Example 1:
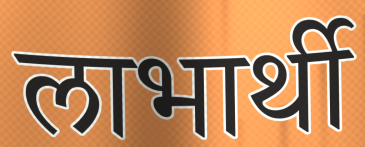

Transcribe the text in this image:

लाभार्थी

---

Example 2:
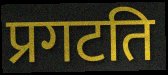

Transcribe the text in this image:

प्रगटति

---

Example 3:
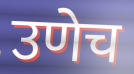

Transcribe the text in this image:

उणेच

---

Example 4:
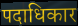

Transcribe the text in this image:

पदाधिकार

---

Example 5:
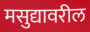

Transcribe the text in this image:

मसुद्यावरील